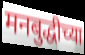
मनबुद्धीच्या